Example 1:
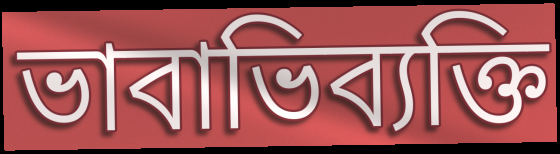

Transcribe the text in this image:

ভাবাভিব্যক্তি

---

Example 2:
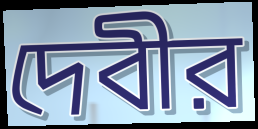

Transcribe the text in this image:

দেবীর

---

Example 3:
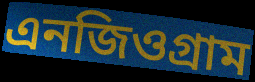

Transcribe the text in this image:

এনজিওগ্রাম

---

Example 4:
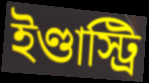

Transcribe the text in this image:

ইণ্ডাস্ট্রি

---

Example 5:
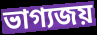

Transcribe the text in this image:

ভাগ্যজয়